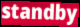
standby